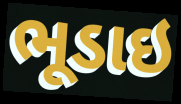
ભૂડાઇ